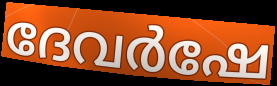
ദേവർഷേ